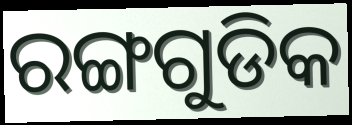
ରଙ୍ଗଗୁଡିକ